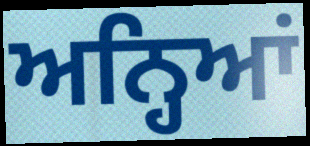
ਅਨ੍ਹਿਆਂ